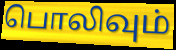
பொலிவும்